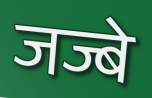
जज्बे